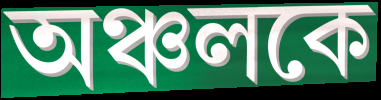
অঞ্চলকে